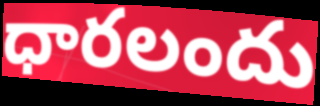
ధారలందు